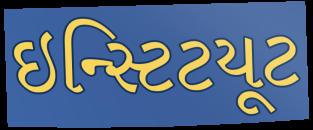
ઇન્સ્ટિટયૂટ